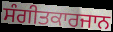
ਸੰਗੀਤਕਾਰਜਾਨ